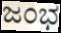
ಜಂಭ